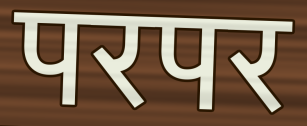
परपर